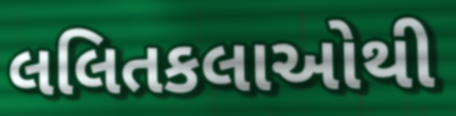
લલિતકલાઓથી